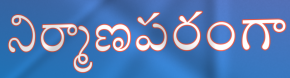
నిర్మాణపరంగా